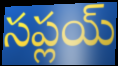
సప్లయ్